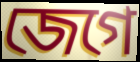
জেগে